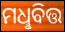
ମଧୢବିତ୍ତ